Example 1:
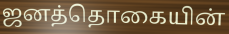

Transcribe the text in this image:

ஜனத்தொகையின்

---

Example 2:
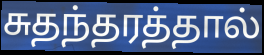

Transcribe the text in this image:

சுதந்தரத்தால்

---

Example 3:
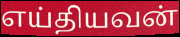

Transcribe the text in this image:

எய்தியவன்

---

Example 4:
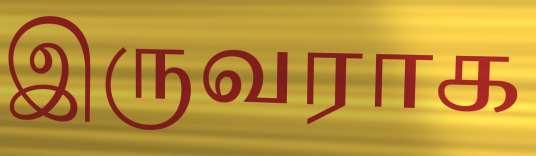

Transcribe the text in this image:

இருவராக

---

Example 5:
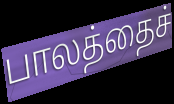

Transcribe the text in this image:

பாலத்தைச்